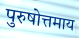
पुरुषोत्तमाय